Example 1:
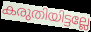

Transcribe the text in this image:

കരുതിയിട്ടല്ലേ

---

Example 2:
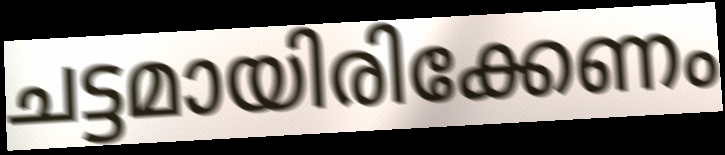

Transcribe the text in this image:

ചട്ടമായിരിക്കേണം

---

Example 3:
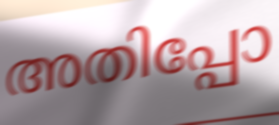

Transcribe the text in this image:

അതിപ്പോ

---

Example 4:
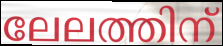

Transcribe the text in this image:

ലേലത്തിന്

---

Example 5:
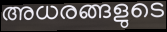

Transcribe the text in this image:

അധരങ്ങളുടെ